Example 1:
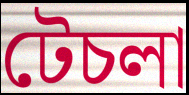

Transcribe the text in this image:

টেচলা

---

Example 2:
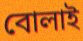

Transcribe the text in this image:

বোলাই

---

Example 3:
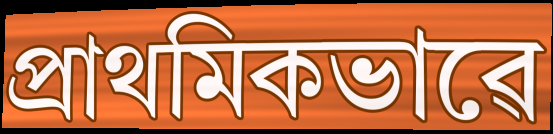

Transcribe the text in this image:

প্ৰাথমিকভাৱে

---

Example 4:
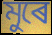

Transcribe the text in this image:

মুৰে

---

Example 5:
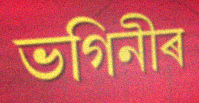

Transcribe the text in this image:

ভগিনীৰ